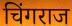
चिंगराज